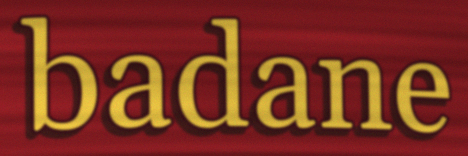
badane